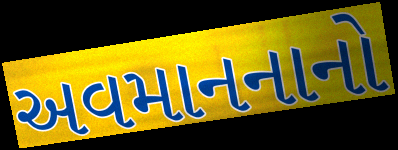
અવમાનનાનો